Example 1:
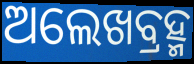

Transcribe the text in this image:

ଅଲେଖବ୍ରହ୍ମ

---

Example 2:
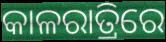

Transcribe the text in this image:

କାଳରାତ୍ରିରେ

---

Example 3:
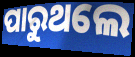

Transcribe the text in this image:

ପାରୁଥଲେ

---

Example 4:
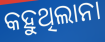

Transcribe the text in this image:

କହୁଥିଲାନା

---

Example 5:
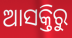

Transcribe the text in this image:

ଆସକ୍ତିରୁ